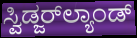
ಸ್ವಿಡ್ಜರ್‌ಲ್ಯಾಂಡ್